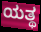
ಯತ್ಥ